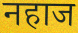
नहाज